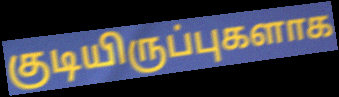
குடியிருப்புகளாக